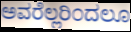
ಅವರೆಲ್ಲರಿಂದಲೂ